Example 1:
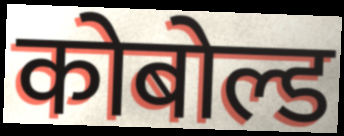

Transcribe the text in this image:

कोबोल्ड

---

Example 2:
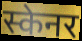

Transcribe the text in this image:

स्केनर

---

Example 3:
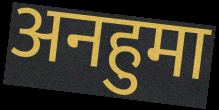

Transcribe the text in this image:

अनहुमा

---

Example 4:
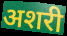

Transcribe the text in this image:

अशरी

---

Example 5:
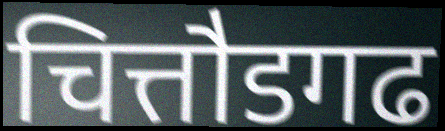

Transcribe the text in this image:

चित्तौडगढ